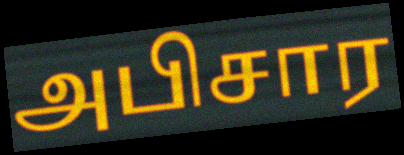
அபிசார